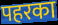
पहरका